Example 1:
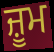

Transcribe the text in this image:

ਜ਼ੂਮ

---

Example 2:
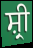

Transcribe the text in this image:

ਸ਼੍ਰੀ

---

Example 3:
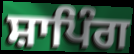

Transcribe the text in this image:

ਸ਼ਾਪਿੰਗ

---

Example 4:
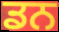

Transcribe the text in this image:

ਡਨ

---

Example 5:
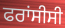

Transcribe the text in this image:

ਫਰਾਂਸੀਸੀ